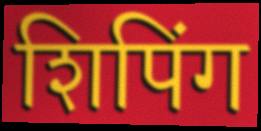
शिपिंग